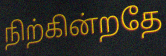
நிற்கின்றதே